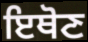
ਇਥੋਣ